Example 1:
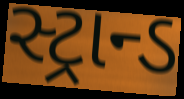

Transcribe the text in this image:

સ્ટ્રાન્ડ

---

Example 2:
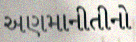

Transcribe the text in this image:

અણમાનીતીનો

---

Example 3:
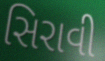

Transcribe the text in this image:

સિરાવી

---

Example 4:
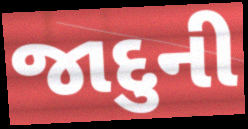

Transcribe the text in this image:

જાદુની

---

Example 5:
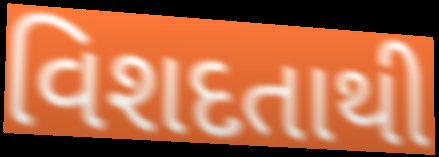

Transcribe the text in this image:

વિશદતાથી